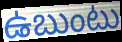
ఉబుంటు